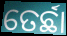
ତେର୍ଛା